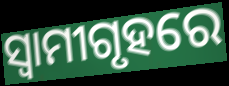
ସ୍ଵାମୀଗୃହରେ